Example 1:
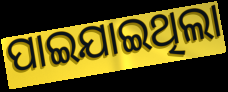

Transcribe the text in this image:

ପାଇଯାଇଥିଲା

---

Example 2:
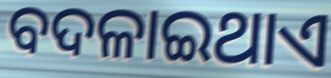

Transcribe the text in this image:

ବଦଳାଇଥାଏ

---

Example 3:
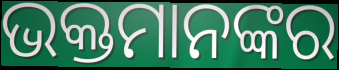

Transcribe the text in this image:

ଭକ୍ତମାନଙ୍କର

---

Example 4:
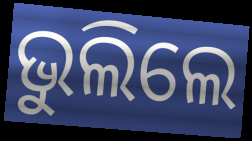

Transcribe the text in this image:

ଭୁଲିଲେ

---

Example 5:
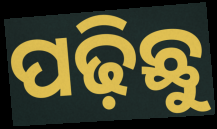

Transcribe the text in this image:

ପଢ଼ିଛୁ